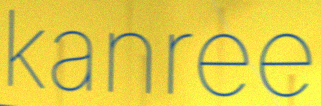
kanree